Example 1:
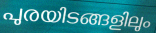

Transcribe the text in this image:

പുരയിടങ്ങളിലും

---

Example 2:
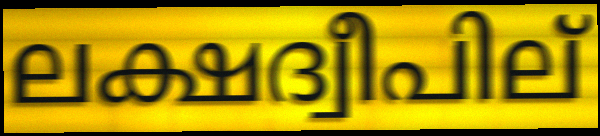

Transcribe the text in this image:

ലക്ഷദ്വീപില്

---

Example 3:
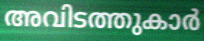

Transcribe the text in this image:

അവിടത്തുകാർ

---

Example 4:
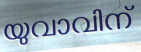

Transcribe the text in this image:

യുവാവിന്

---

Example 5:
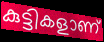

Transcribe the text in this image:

കുട്ടികളാണ്